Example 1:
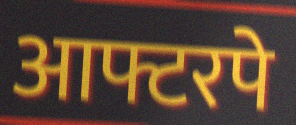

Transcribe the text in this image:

आफ्टरपे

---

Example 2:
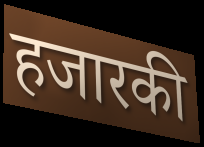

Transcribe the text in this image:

हजारकी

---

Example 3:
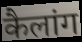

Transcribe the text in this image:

कैलांग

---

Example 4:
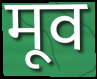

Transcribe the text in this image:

मूव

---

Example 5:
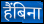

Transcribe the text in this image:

हैंबिना